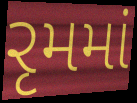
રૃમમાં